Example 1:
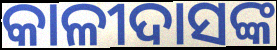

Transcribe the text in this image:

କାଳୀଦାସଙ୍କ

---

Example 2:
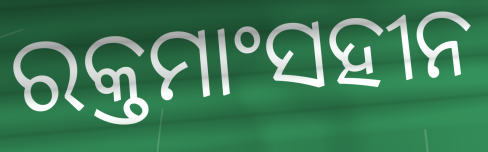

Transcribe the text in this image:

ରକ୍ତମାଂସହୀନ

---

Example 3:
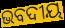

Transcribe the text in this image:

ଭବଦୀୟ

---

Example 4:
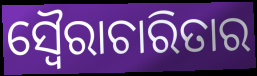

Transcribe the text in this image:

ସ୍ୱୈରାଚାରିତାର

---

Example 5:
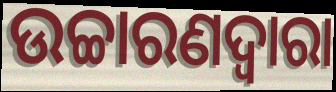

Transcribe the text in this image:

ଉଚ୍ଚାରଣଦ୍ଵାରା